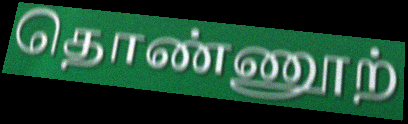
தொண்ணூற்